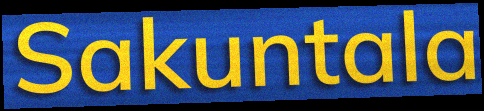
Sakuntala